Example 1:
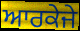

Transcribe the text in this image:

ਆਰਕੇਜੇ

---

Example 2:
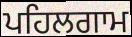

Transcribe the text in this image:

ਪਹਿਲਗਾਮ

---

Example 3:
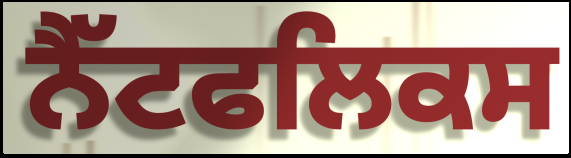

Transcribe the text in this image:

ਨੈੱਟਫਲਿਕਸ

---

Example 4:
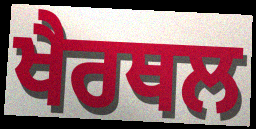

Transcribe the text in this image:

ਖੈਰਥਲ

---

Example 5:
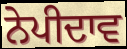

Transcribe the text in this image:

ਨੇਪੀਦਾਵ